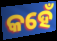
କହେଁ